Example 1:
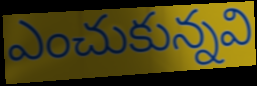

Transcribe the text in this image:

ఎంచుకున్నవి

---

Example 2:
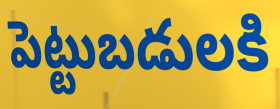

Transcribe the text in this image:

పెట్టుబడులకి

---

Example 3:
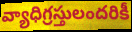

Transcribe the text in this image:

వ్యాధిగ్రస్తులందరికీ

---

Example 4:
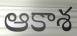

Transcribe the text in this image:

ఆకాశ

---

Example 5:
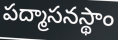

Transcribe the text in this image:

పద్మాసనస్థాం